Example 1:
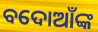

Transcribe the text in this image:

ବଦୋଆଁଙ୍କ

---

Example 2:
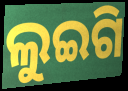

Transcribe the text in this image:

ଲୁଇଗି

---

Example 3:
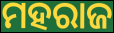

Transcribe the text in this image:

ମହରାଜ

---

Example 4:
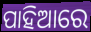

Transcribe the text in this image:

ପାହିଆରେ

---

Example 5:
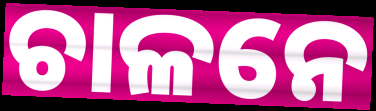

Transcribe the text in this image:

ଚାଳନେ